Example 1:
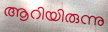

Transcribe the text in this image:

ആറിയിരുന്നു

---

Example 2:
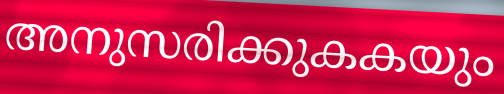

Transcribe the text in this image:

അനുസരിക്കുകകയും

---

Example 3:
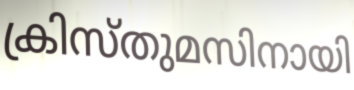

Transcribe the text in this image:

ക്രിസ്തുമസിനായി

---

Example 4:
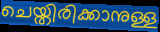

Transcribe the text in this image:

ചെയ്തിരിക്കാനുള്ള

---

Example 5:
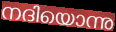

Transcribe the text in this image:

നദിയൊന്നു